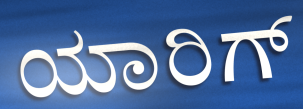
ಯಾರಿಗ್